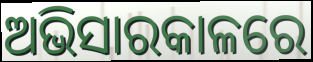
ଅଭିସାରକାଳରେ